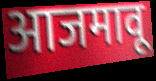
आजमावू